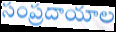
సంప్రదాయాల